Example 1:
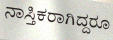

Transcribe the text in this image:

ನಾಸ್ತಿಕರಾಗಿದ್ದರೂ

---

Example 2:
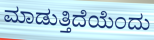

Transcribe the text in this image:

ಮಾಡುತ್ತಿದೆಯೆಂದು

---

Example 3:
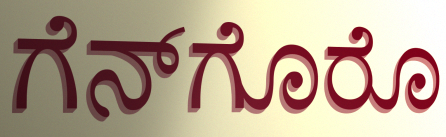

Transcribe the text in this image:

ಗೆನ್‌ಗೊರೊ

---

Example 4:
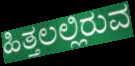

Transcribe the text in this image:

ಹಿತ್ತಲಲ್ಲಿರುವ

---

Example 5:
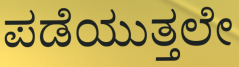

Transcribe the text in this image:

ಪಡೆಯುತ್ತಲೇ